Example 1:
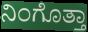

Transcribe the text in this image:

ನಿಂಗೊತ್ತಾ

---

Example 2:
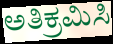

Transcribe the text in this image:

ಅತಿಕ್ರಮಿಸಿ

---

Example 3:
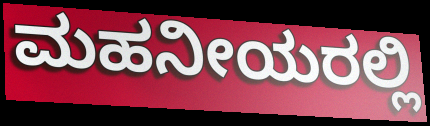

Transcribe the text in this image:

ಮಹನೀಯರಲ್ಲಿ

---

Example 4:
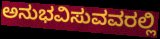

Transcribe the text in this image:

ಅನುಭವಿಸುವವರಲ್ಲಿ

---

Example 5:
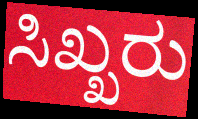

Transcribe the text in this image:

ಸಿಖ್ಖರು